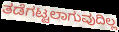
ತಡೆಗಟ್ಟಲಾಗುವುದಿಲ್ಲ